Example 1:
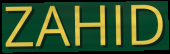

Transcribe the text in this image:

ZAHID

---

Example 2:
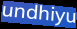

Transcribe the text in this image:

undhiyu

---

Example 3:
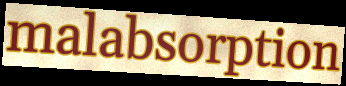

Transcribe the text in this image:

malabsorption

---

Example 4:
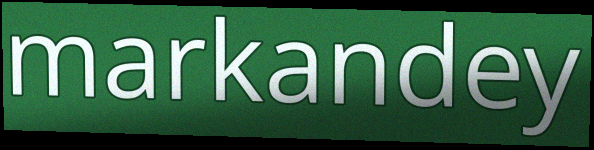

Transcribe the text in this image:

markandey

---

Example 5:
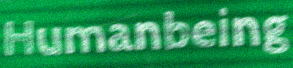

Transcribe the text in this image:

Humanbeing